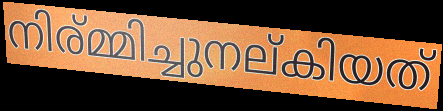
നിര്മ്മിച്ചുനല്കിയത്